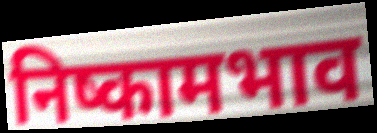
निष्कामभाव